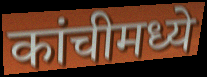
कांचीमध्ये